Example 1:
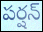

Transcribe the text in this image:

పర్షన్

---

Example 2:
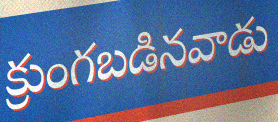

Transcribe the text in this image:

క్రుంగబడినవాడు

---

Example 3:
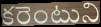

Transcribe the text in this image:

కరెంటుని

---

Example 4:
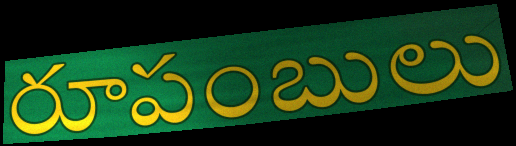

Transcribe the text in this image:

రూపంబులు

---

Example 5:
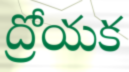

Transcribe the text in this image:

ద్రోయక